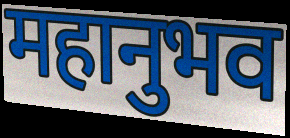
महानुभव